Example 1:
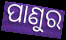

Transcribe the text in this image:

ପାଣୁର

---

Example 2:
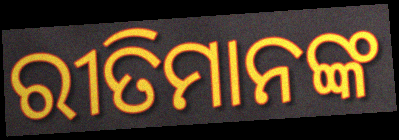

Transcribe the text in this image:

ରୀତିମାନଙ୍କ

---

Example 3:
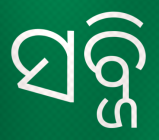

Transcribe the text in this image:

ସବ୍ଜି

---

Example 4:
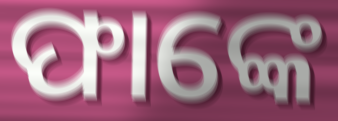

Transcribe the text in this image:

ଫାଙ୍କେ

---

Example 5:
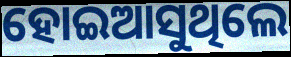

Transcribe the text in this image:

ହୋଇଆସୁଥିଲେ